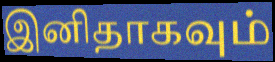
இனிதாகவும்